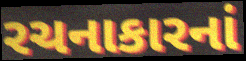
રચનાકારનાં